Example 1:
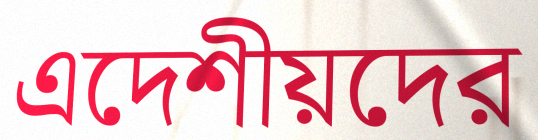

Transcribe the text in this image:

এদেশীয়দের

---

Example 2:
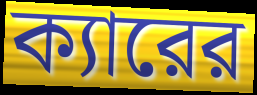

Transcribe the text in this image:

ক্যারের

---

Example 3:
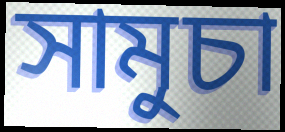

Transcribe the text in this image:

সামুচা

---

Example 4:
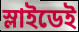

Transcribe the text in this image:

স্লাইডেই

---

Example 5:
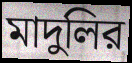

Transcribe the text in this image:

মাদুলির